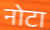
नोटा